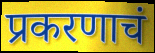
प्रकरणाचं